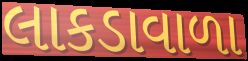
લાકડાવાળા